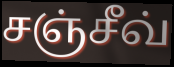
சஞ்சீவ்